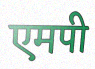
एमपी